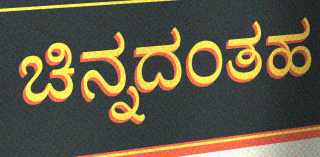
ಚಿನ್ನದಂತಹ